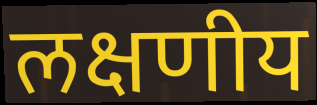
लक्षणीय